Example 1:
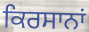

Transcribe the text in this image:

ਕਿਰਸਾਨਾਂ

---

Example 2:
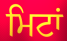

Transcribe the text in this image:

ਮਿਟਾਂ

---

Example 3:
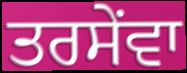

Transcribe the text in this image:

ਤਰਸੇਂਵਾ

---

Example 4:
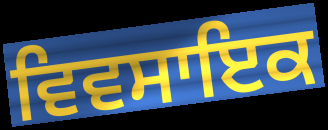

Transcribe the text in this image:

ਵਿਵਸਾਇਕ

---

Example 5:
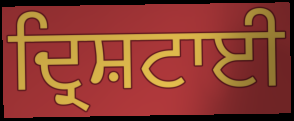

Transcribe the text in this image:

ਦ੍ਰਿਸ਼ਟਾਈ